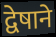
द्वेषाने